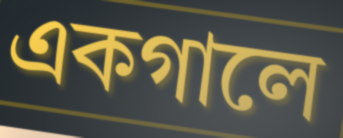
একগালে